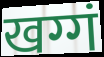
खग्गं